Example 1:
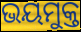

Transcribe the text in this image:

ଭୟମୁକ୍ତ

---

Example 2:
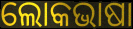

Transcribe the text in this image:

ଲୋକଭାଷା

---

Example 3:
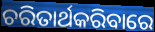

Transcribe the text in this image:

ଚରିତାର୍ଥକରିବାରେ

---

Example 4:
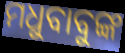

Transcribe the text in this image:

ମଧୁବାବୁଙ୍କ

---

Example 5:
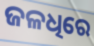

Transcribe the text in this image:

ଜଳଧିରେ